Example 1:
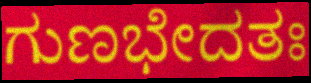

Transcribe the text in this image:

ಗುಣಭೇದತಃ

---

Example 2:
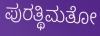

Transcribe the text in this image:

ಪುರತ್ಥಿಮತೋ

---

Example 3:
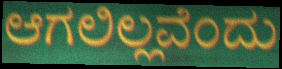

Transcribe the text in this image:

ಆಗಲಿಲ್ಲವೆಂದು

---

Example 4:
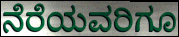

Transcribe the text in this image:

ನೆರೆಯವರಿಗೂ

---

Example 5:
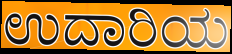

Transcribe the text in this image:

ಉದಾರಿಯ